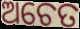
ଅଚେତ